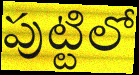
పుట్టిలో